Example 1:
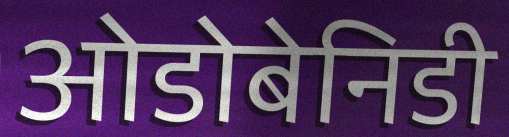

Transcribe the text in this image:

ओडोबेनिडी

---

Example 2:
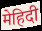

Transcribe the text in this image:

मेहिदी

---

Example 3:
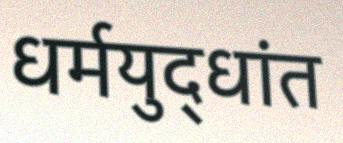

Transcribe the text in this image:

धर्मयुद्धांत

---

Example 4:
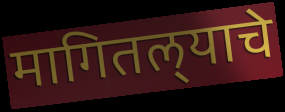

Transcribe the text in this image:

मागितल्याचे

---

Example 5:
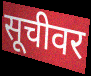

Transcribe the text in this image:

सूचीवर